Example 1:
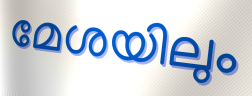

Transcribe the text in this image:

മേശയിലും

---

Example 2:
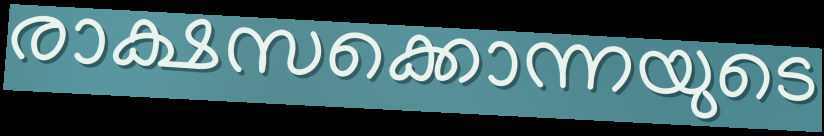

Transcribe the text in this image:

രാക്ഷസക്കൊന്നയുടെ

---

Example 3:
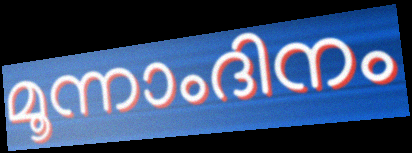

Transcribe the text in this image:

മൂന്നാംദിനം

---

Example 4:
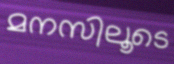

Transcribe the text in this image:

മനസിലൂടെ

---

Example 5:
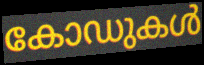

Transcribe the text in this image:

കോഡുകൾ